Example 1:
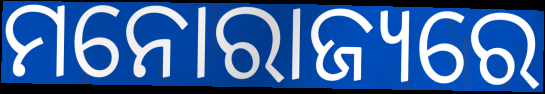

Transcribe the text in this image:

ମନୋରାଜ୍ୟରେ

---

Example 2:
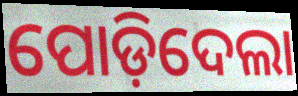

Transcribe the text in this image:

ପୋଡ଼ିଦେଲା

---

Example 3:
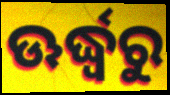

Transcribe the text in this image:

ଊର୍ଦ୍ଧ୍ଵରୁ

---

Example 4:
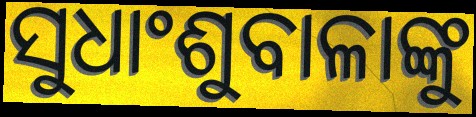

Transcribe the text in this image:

ସୁଧାଂଶୁବାଳାଙ୍କୁ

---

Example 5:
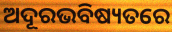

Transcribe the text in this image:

ଅଦୂରଭବିଷ୍ୟତରେ